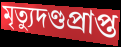
মৃত্যুদণ্ডপ্রাপ্ত